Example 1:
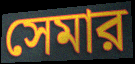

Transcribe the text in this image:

সেমার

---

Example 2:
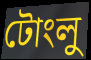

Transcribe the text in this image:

টোংলু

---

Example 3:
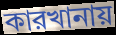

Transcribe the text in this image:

কারখানায়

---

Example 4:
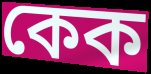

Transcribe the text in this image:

কেক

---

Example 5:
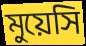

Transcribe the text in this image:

মুয়েসি